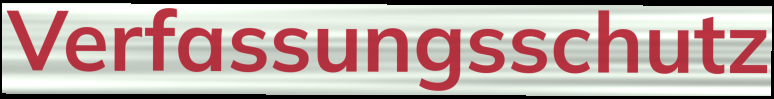
Verfassungsschutz